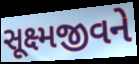
સૂક્ષ્મજીવને